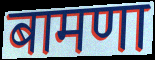
बामणा